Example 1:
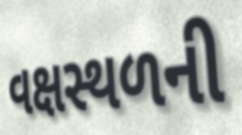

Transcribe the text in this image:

વક્ષસ્થળની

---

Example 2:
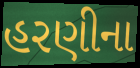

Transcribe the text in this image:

હરણીના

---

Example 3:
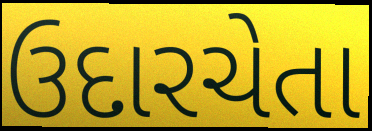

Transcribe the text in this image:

ઉદારચેતા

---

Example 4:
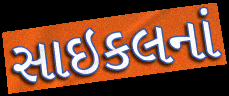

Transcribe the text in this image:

સાઇકલનાં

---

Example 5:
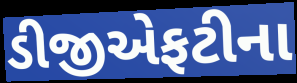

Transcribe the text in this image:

ડીજીએફટીના